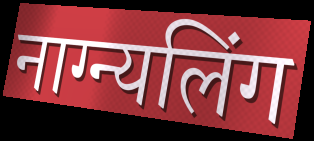
नाग्न्यलिंग